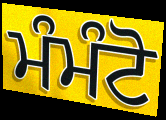
ਮੰਮੰਟੋ